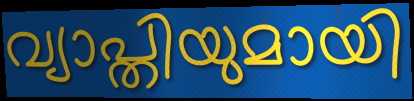
വ്യാപ്തിയുമായി